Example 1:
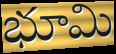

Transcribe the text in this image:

భూమి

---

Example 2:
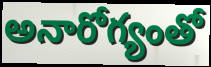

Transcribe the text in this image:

అనారోగ్యంతో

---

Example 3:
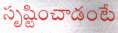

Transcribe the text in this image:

సృష్టించాడంటే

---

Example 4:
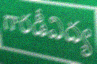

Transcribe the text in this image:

గారడీవిద్య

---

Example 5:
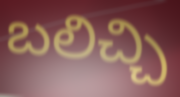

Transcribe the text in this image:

బలిచ్చి